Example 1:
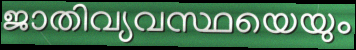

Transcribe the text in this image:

ജാതിവ്യവസ്ഥയെയും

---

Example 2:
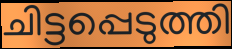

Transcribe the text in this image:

ചിട്ടപ്പെടുത്തി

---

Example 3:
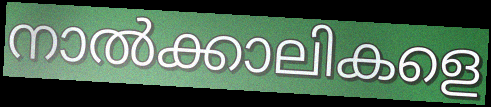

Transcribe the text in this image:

നാൽക്കാലികളെ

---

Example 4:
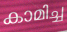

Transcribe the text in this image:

കാമിച്ച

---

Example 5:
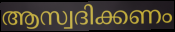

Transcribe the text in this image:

ആസ്വദിക്കണം